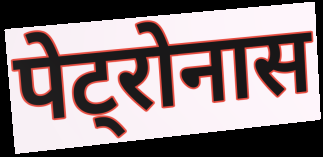
पेट्रोनास